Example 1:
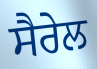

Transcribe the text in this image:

ਸੈਰੇਲ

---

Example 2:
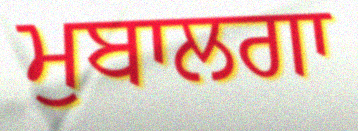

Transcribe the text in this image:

ਮੁਬਾਲਗਾ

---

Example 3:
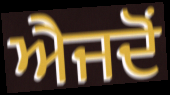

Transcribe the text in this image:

ਐਜਦੋਂ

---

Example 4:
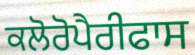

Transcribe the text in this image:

ਕਲੋਰੋਪੈਰੀਫਾਸ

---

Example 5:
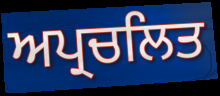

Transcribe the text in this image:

ਅਪ੍ਰਚਲਿਤ